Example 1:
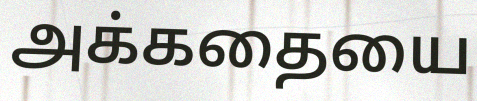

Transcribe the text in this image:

அக்கதையை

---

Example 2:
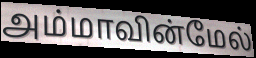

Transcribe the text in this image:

அம்மாவின்மேல்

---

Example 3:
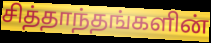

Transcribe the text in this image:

சித்தாந்தங்களின்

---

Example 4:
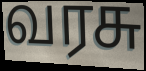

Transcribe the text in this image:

வரசு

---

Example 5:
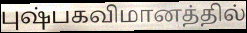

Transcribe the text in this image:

புஷ்பகவிமானத்தில்